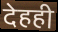
देहही